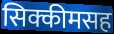
सिक्कीमसह